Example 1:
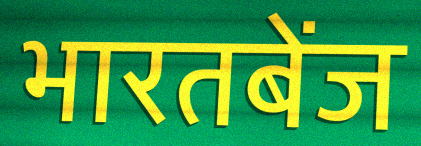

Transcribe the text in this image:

भारतबेंज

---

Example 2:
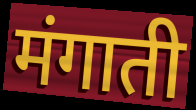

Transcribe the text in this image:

मंगाती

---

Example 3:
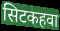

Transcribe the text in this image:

सिटकहवा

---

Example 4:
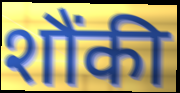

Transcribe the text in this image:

शौंकी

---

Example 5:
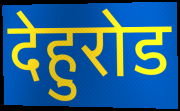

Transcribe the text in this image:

देहुरोड